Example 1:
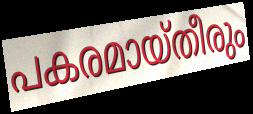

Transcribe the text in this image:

പകരമായ്തീരും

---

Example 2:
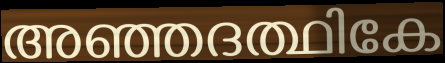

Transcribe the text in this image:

അഞ്ഞദത്ഥികേ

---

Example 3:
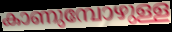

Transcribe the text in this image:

കാണുമ്പോഴുള്ള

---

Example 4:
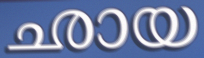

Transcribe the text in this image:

ഛായ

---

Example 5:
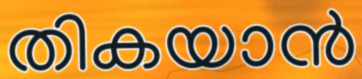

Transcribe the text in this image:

തികയാൻ